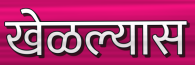
खेळल्यास